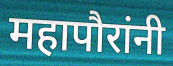
महापौरांनी